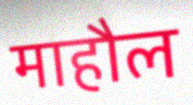
माहौल